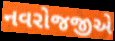
નવરોજજીએ